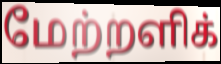
மேற்றளிக்